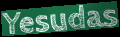
Yesudas